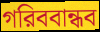
গরিববান্ধব